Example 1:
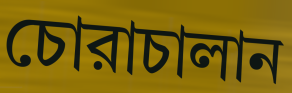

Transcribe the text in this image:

চোরাচালান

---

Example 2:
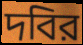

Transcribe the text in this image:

দবির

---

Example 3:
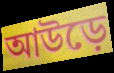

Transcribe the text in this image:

আউড়ে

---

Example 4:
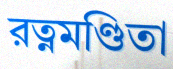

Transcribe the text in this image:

রত্নমণ্ডিতা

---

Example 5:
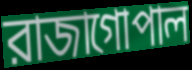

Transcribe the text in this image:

রাজাগোপাল